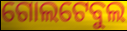
ଗୋଲଟେବୁଲ